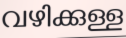
വഴിക്കുള്ള